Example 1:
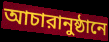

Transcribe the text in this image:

আচারানুষ্ঠানে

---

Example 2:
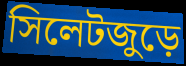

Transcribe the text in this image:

সিলেটজুড়ে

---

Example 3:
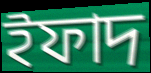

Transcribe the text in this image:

ইফাদ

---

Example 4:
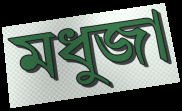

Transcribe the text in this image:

মধুজা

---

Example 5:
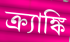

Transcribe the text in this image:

ক্র্যাঙ্কি